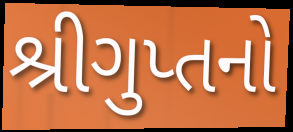
શ્રીગુપ્તનો